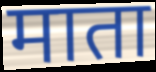
माता